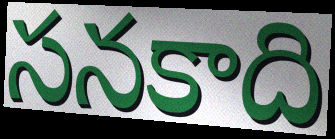
సనకాది